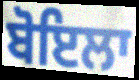
ਬੋਇਲਾ